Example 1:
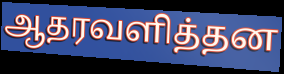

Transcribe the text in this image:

ஆதரவளித்தன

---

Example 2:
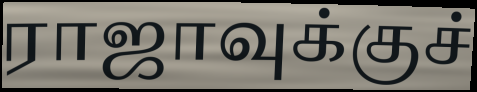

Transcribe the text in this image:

ராஜாவுக்குச்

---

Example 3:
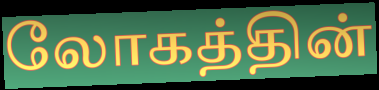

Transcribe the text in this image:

லோகத்தின்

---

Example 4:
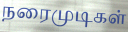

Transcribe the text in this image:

நரைமுடிகள்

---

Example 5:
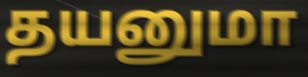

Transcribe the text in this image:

தயனுமா